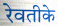
रेवतीके